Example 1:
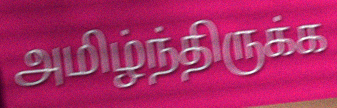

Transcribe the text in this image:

அமிழ்ந்திருக்க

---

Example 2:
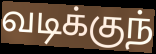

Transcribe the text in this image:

வடிக்குந்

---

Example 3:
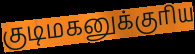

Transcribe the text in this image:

குடிமகனுக்குரிய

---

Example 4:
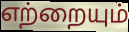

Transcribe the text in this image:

எற்றையும்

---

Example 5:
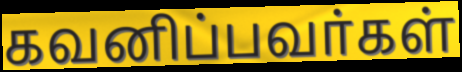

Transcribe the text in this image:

கவனிப்பவர்கள்